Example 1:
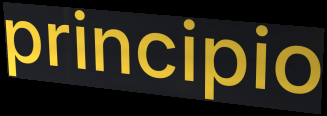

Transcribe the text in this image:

principio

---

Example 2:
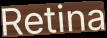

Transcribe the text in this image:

Retina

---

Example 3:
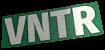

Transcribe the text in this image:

VNTR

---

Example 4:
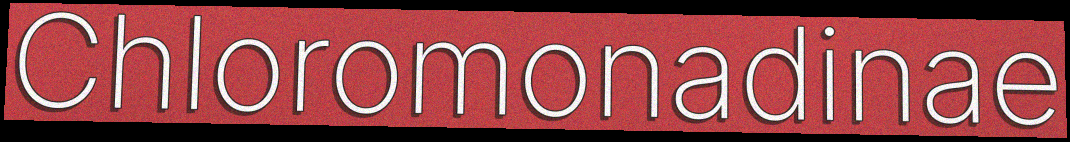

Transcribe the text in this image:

Chloromonadinae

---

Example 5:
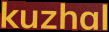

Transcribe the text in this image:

kuzhal